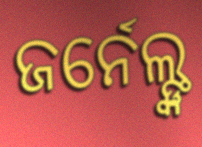
ଜର୍ନେଲ୍ଙ୍କ